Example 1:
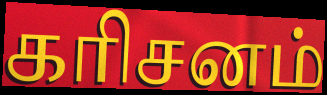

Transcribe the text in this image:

கரிசனம்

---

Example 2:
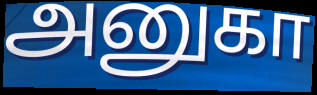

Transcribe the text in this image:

அனுகா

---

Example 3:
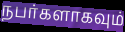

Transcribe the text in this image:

நபர்களாகவும்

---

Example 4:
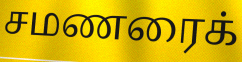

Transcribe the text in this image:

சமணரைக்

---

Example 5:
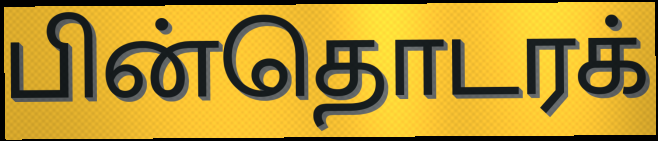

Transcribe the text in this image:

பின்தொடரக்